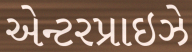
એન્ટરપ્રાઇઝે